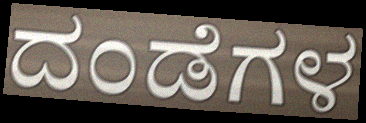
ದಂಡೆಗಳ